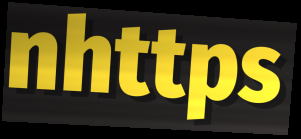
nhttps